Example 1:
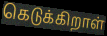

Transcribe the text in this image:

கெடுக்கிறாள்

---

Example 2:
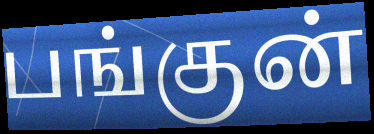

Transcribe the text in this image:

பங்குன்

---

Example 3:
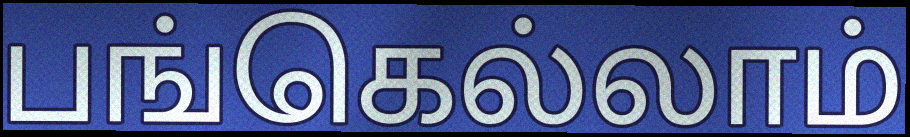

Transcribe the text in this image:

பங்கெல்லாம்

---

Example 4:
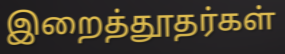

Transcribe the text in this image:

இறைத்தூதர்கள்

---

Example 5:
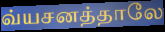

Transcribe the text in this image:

வ்யசனத்தாலே